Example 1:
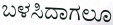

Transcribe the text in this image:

ಬಳಸಿದಾಗಲೂ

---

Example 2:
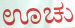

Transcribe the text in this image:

ಊಚು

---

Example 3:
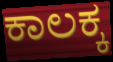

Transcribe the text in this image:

ಕಾಲಕ್ಕ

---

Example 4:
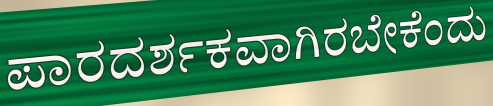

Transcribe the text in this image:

ಪಾರದರ್ಶಕವಾಗಿರಬೇಕೆಂದು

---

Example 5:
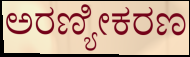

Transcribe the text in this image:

ಅರಣ್ಯೀಕರಣ